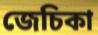
জেচিকা